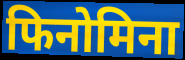
फिनोमिना